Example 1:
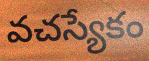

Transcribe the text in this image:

వచస్యేకం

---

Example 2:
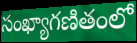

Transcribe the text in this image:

సంఖ్యాగణితంలో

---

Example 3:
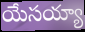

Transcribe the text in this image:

యేసయ్యా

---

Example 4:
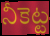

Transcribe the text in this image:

నీకెట్ట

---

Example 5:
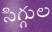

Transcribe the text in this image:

సిగ్గుల